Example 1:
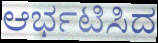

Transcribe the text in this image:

ಆರ್ಭಟಿಸಿದ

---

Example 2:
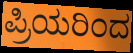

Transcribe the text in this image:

ಪ್ರಿಯರಿಂದ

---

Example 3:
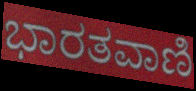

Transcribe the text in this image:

ಭಾರತವಾಣಿ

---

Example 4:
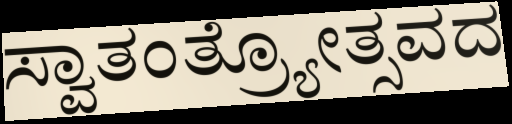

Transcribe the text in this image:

ಸ್ವಾತಂತ್ರ್ಯೋತ್ಸವದ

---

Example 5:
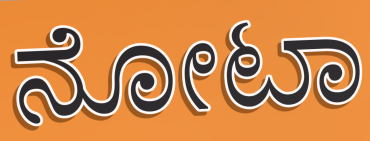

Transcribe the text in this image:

ನೋಟಾ